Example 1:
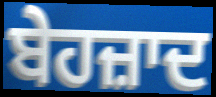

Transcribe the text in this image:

ਬੇਹਜ਼ਾਦ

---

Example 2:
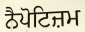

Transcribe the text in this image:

ਨੈਪੋਟਿਜ਼ਮ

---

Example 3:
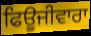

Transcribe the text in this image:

ਫਿਊਜੀਵਾਰਾ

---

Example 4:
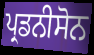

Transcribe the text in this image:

ਪ੍ਰਡਨੀਸੋਨ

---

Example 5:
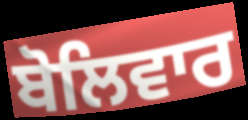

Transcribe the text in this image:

ਬੋਲਿਵਾਰ